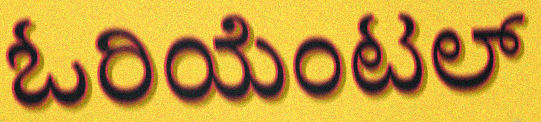
ಓರಿಯೆಂಟಲ್